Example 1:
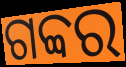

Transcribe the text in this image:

ଗବ୍ବର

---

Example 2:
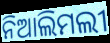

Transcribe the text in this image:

ନିଆଲିମଲୀ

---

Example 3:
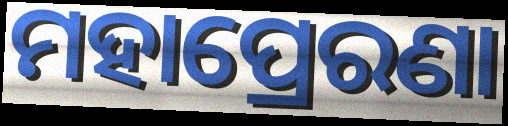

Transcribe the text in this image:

ମହାପ୍ରେରଣା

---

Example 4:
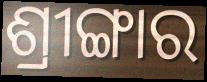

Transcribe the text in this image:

ଶ୍ରୀଙ୍ଗାର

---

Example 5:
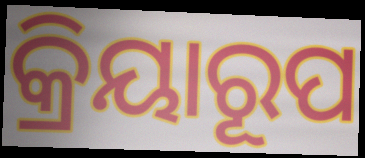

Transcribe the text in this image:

କ୍ରିୟାରୂପ